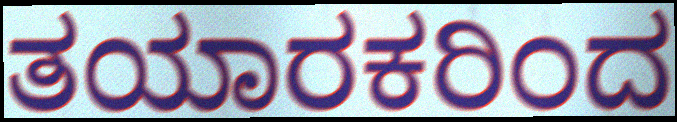
ತಯಾರಕರಿಂದ